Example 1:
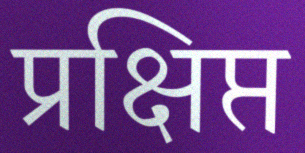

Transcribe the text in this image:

प्रक्षिप्त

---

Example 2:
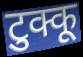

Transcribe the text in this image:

टुक्कू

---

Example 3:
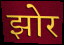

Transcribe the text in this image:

झोर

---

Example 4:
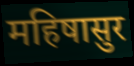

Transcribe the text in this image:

महिषासुर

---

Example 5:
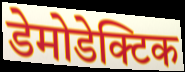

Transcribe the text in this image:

डेमोडेक्टिक